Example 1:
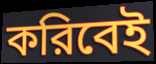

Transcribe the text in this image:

করিবেই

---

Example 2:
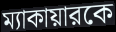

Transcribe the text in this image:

ম্যাকায়ারকে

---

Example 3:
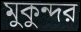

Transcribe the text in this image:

মুকুন্দর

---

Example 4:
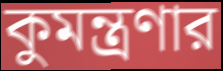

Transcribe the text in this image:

কুমন্ত্রণার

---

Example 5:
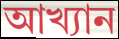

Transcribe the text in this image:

আখ্যান